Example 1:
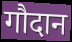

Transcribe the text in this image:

गौदान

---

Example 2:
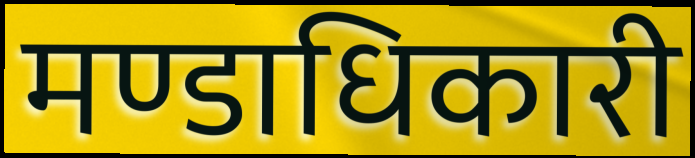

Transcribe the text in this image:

मण्डाधिकारी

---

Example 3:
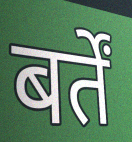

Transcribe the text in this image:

बर्तें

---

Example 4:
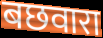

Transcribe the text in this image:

बछवारा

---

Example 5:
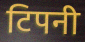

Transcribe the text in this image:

टिपनी